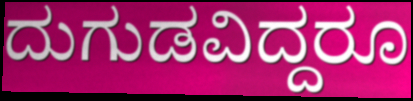
ದುಗುಡವಿದ್ದರೂ